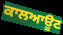
ਕਾਲਆਊਟ